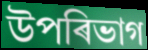
উপৰিভাগ